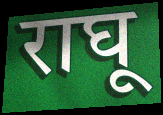
राघू